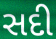
સદી